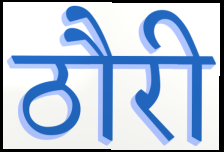
ठौरी